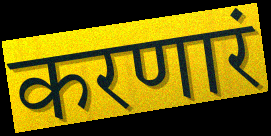
करणारं